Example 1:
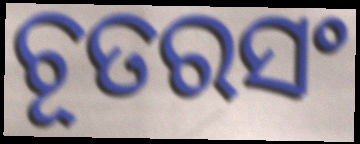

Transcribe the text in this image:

ଚୂତରସଂ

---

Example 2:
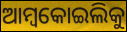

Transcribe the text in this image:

ଆମ୍ବକୋଇଲିକୁ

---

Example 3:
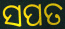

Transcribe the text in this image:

ସପତ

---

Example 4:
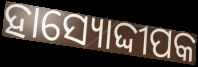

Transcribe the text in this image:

ହାସ୍ୟୋଦ୍ଦୀପକ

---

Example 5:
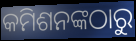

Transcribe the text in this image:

କମିଶନଙ୍କଠାରୁ